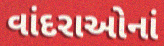
વાંદરાઓનાં